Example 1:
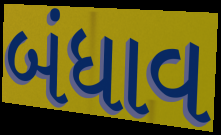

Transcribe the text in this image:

બંધાવ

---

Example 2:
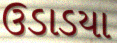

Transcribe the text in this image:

ઉડાડયા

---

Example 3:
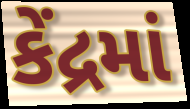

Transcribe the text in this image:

કેંદ્રમાં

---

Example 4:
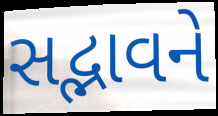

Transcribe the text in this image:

સદ્ભાવને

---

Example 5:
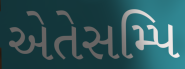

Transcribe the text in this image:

એતેસમ્પિ